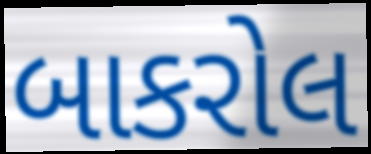
બાકરોલ